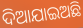
ଦିଆଯାଇଅଛି